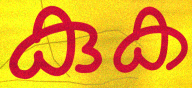
കുക